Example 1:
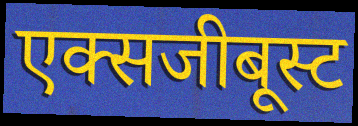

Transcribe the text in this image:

एक्सजीबूस्ट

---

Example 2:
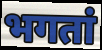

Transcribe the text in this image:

भगतां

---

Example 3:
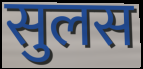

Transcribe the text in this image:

सुलस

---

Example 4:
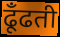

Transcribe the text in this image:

ढूँढती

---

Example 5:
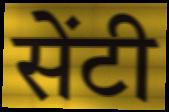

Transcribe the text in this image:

सेंटी